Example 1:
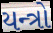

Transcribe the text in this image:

યન્ત્રો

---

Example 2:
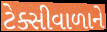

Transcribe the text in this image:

ટેક્સીવાળાને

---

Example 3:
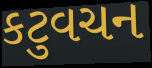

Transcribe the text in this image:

કટુવચન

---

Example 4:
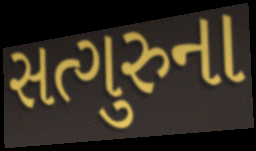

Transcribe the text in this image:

સત્ગુરુના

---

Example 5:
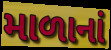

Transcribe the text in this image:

માળાનાં